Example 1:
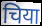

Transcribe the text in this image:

चिया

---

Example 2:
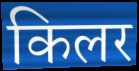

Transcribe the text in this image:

किलर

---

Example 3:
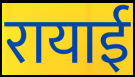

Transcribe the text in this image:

रायाई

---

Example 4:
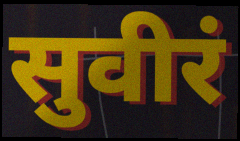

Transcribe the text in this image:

सुवीरं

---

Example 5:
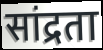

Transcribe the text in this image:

सांद्रता